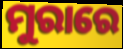
ମୁରାରେ